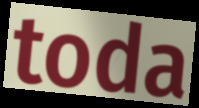
toda